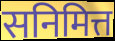
सनिमित्त